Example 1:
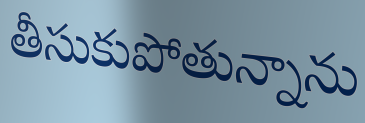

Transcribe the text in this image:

తీసుకుపోతున్నాను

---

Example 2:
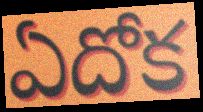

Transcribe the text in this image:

ఏదోక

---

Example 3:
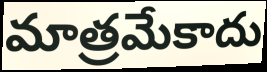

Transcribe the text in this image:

మాత్రమేకాదు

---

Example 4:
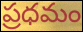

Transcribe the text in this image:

ప్రధమం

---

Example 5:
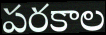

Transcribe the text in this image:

పరకాల